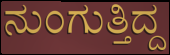
ನುಂಗುತ್ತಿದ್ದ